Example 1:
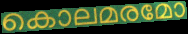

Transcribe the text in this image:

കൊലമരമോ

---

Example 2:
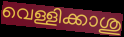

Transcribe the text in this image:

വെള്ളിക്കാശു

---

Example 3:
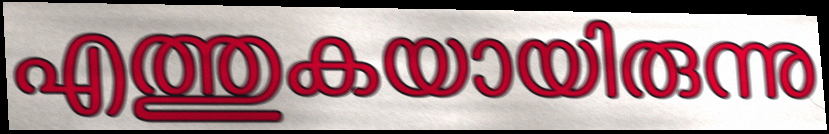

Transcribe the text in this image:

എത്തുകയായിരുന്നു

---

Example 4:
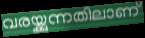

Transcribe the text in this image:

വരയ്ക്കുന്നതിലാണ്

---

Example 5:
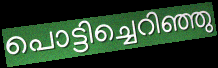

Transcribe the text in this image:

പൊട്ടിച്ചെറിഞ്ഞു